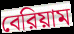
বেরিয়াম